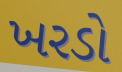
ખરડો